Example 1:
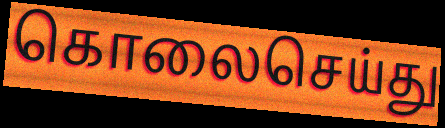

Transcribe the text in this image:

கொலைசெய்து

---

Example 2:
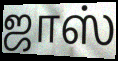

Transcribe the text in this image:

ஜாஸ்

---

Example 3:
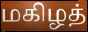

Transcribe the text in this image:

மகிழத்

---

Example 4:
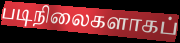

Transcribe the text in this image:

படிநிலைகளாகப்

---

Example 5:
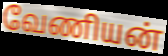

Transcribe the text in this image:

வேணியன்